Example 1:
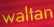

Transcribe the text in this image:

waltan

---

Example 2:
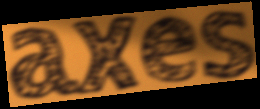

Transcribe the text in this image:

axes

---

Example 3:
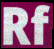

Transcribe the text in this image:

Rf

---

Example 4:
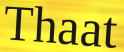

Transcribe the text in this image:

Thaat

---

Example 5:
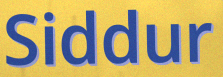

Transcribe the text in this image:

Siddur